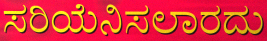
ಸರಿಯೆನಿಸಲಾರದು